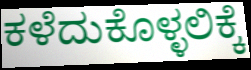
ಕಳೆದುಕೊಳ್ಳಲಿಕ್ಕೆ